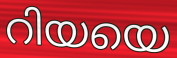
റിയയെ